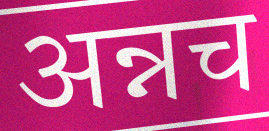
अन्नच